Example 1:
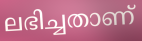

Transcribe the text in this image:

ലഭിച്ചതാണ്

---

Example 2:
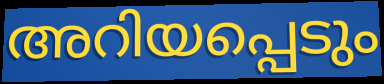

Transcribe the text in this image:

അറിയപ്പെടും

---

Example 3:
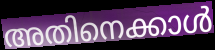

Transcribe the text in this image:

അതിനെക്കാൾ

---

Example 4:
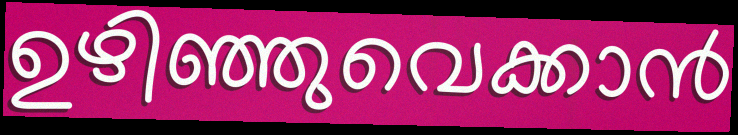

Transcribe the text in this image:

ഉഴിഞ്ഞുവെക്കാൻ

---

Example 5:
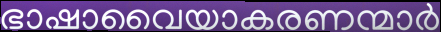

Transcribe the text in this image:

ഭാഷാവൈയാകരണന്മാർ